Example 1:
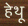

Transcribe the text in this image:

हेथू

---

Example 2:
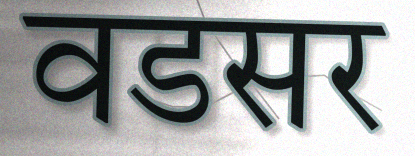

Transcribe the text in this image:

वडसर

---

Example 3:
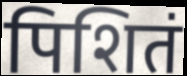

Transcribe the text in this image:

पिशितं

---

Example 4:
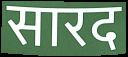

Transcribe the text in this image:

सारद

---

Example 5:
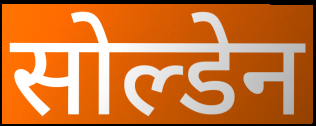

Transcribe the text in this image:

सोल्डेन